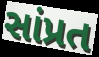
સાંપ્રત